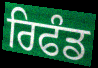
ਰਿਫੰਡ